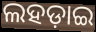
ଲହଡ଼ାଇ